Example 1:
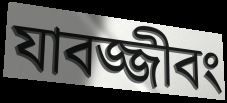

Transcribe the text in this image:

যাবজ্জীবং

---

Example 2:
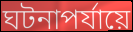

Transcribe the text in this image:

ঘটনাপর্যায়ে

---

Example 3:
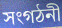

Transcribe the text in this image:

সংগঠনী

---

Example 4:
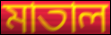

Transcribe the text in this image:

মাতাল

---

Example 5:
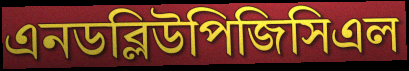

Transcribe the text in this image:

এনডব্লিউপিজিসিএল